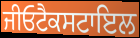
ਜੀਓਟੈਕਸਟਾਇਲ